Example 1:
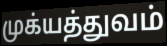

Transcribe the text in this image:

முக்யத்துவம்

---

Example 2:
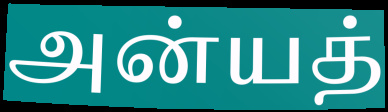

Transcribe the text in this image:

அன்யத்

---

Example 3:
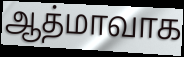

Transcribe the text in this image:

ஆத்மாவாக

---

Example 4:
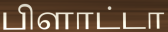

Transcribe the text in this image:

பிளாட்டா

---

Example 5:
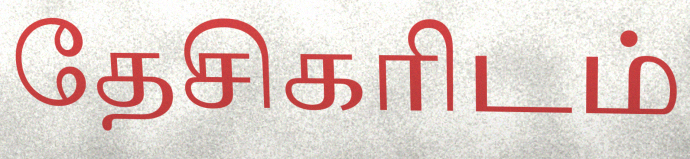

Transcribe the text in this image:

தேசிகரிடம்